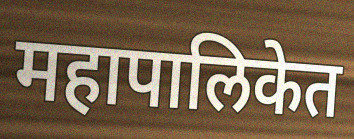
महापालिकेत